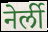
नेर्ली